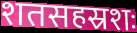
शतसहस्रशः